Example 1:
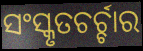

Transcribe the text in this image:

ସଂସ୍କୃତଚର୍ଚ୍ଚାର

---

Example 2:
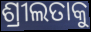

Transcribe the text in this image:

ଶ୍ରୀଲତାକୁ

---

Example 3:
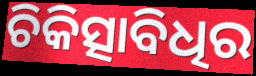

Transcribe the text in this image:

ଚିକିତ୍ସାବିଧିର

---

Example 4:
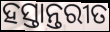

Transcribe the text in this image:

ହସ୍ତାନ୍ତରୀତ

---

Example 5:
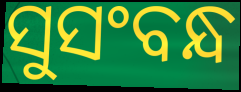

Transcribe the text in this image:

ସୁସଂବନ୍ଧ